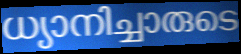
ധ്യാനിച്ചാരുടെ